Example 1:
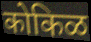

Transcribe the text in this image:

कोकिळ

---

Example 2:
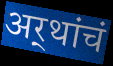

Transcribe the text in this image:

अर्थांचं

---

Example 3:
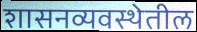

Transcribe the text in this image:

शासनव्यवस्थेतील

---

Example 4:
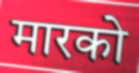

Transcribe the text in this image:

मारको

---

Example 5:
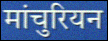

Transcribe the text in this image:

मांचुरियन